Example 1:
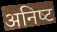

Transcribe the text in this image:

अनिष्‍ट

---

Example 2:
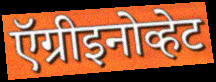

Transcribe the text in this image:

ऍग्रीइनोव्हेट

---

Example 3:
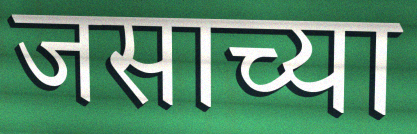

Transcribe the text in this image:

जसाच्या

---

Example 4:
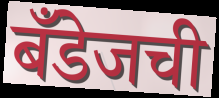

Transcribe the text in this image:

बँडेजची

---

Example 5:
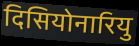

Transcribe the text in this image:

दिसियोनारियु